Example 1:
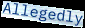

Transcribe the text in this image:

Allegedly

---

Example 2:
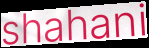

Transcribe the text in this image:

shahani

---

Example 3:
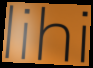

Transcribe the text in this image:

lihi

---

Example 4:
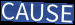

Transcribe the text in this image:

CAUSE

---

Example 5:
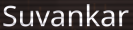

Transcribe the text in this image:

Suvankar